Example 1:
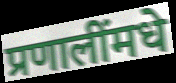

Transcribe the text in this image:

प्रणालींमधे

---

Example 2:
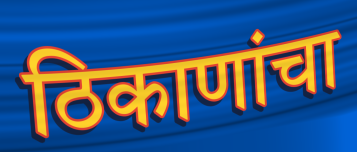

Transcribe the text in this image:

ठिकाणांचा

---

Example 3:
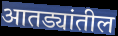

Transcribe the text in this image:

आतड्यांतील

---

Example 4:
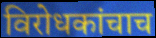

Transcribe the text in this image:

विरोधकांचाच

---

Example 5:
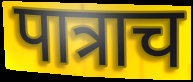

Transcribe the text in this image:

पात्राच